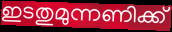
ഇടതുമുന്നണിക്ക്